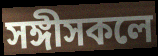
সঙ্গীসকলে